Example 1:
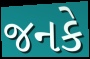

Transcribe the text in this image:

જનકે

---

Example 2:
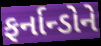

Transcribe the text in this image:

ફર્નાન્ડોને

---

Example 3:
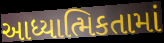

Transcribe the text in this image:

આધ્યાત્મિકતામાં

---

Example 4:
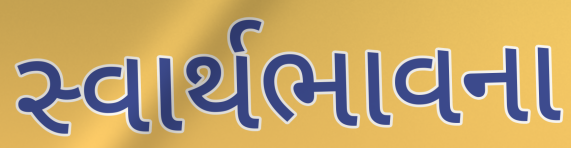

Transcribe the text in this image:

સ્વાર્થભાવના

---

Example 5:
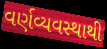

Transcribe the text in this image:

વર્ણવ્યવસ્થાથી